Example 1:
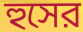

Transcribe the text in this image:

হুসের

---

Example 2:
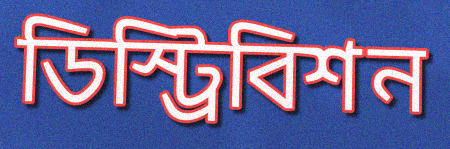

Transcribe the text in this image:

ডিস্ট্রিবিশন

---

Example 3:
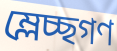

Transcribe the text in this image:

ম্লেচ্ছগণ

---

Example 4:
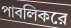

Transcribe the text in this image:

পাবলিকরে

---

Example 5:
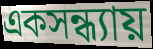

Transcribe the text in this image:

একসন্ধ্যায়